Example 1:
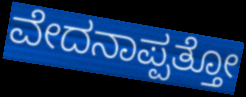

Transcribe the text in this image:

ವೇದನಾಪ್ಪತ್ತೋ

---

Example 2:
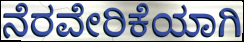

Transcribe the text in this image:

ನೆರವೇರಿಕೆಯಾಗಿ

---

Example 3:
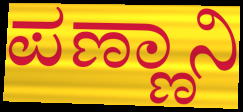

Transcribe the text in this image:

ಪಣ್ಣಾನಿ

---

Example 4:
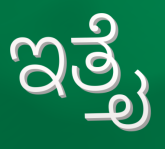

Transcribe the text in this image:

ಇತ್ತೈ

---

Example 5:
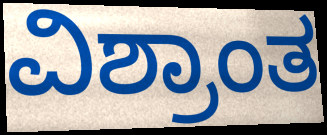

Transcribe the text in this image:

ವಿಶ್ರಾಂತ